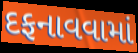
દફનાવવામાં